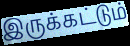
இருக்கட்டும்